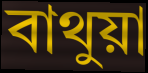
বাথুয়া